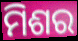
ମିଶର